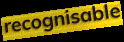
recognisable